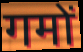
गमों